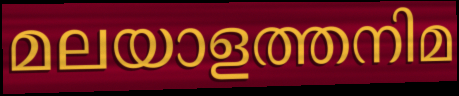
മലയാളത്തനിമ